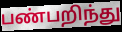
பண்பறிந்து